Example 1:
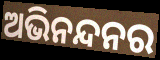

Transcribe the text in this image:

ଅଭିନନ୍ଦନର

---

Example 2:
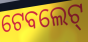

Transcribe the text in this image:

ଟେବଲେଟ୍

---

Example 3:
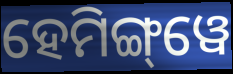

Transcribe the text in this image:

ହେମିଙ୍ଗ୍‌ୱେ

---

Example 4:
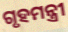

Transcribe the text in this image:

ଗୃହମନ୍ତ୍ରୀ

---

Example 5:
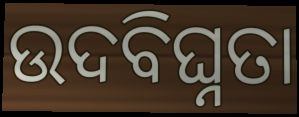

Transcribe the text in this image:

ଉଦବିଘ୍ନତା